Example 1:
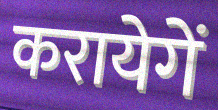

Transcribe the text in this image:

करायेगें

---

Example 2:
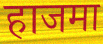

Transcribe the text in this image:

हाजमा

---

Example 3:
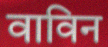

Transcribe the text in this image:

वाविन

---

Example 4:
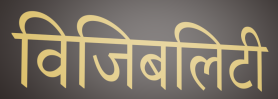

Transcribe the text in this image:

विजिबलिटी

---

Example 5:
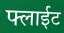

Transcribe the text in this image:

फ्लाईट